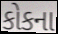
કોકના